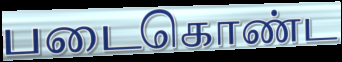
படைகொண்ட